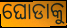
ଘୋଡାକୁ